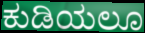
ಕುಡಿಯಲೂ